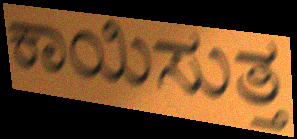
ಕಾಯಿಸುತ್ತ